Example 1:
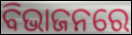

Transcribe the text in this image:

ବିଭାଜନରେ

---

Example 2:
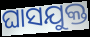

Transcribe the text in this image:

ଘାସଯୁକ୍ତ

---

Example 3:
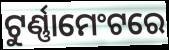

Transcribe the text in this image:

ଟୁର୍ଣ୍ଣାମେଂଟରେ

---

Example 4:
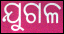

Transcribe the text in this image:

ଯୁଗଳ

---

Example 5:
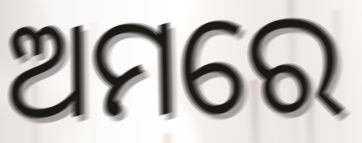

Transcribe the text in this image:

ଅମରେ